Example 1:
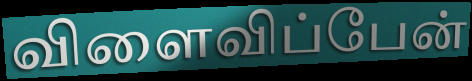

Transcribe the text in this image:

விளைவிப்பேன்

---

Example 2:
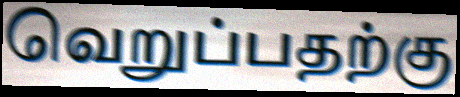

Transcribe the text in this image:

வெறுப்பதற்கு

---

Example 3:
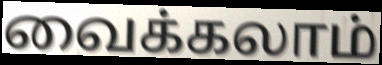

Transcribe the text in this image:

வைக்கலாம்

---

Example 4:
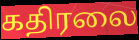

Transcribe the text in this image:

கதிரலை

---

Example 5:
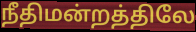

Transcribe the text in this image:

நீதிமன்றத்திலே